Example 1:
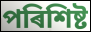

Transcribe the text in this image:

পৰিশিষ্ট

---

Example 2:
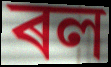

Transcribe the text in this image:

ৰল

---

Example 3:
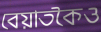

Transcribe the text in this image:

বেয়াতকৈও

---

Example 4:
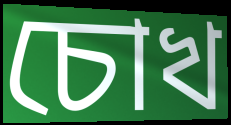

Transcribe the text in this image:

চোখ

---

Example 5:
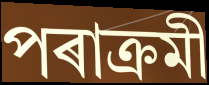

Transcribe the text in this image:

পৰাক্ৰমী